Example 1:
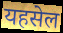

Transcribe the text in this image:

यहसेल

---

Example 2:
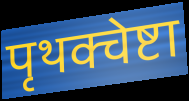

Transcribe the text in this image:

पृथक्चेष्टा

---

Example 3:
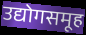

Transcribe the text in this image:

उद्योगसमूह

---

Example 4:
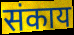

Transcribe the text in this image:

संकाय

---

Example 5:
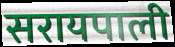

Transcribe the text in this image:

सरायपाली